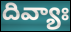
దివ్యాః